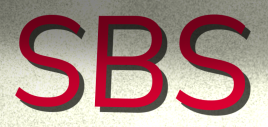
SBS